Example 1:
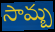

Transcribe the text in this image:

సామ్బ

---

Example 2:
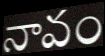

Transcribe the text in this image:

నావం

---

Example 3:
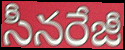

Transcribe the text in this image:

సీనరేజీ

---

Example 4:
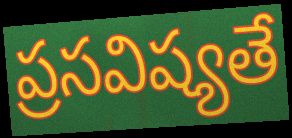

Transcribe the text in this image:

ప్రసవిష్యతే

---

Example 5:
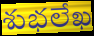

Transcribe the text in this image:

శుభలేఖ